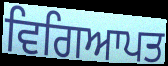
ਵਿਗਿਆਪਤ